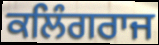
ਕਲਿੰਗਰਾਜ